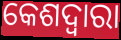
କେଶଦ୍ବାରା